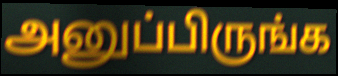
அனுப்பிருங்க